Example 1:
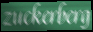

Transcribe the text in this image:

zuckerberg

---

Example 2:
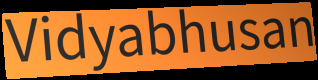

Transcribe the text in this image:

Vidyabhusan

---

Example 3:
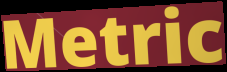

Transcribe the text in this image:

Metric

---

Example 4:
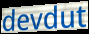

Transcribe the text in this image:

devdut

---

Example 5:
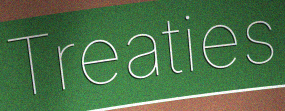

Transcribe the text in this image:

Treaties